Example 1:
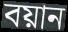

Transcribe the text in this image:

বয়ান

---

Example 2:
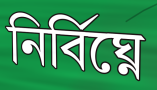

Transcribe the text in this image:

নির্বিঘ্নে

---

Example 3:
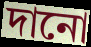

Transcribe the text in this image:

দানো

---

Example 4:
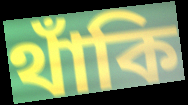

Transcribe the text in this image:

থাঁকি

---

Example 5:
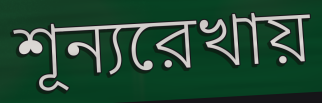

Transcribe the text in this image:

শূন্যরেখায়